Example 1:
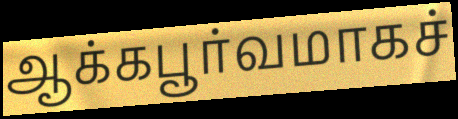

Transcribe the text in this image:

ஆக்கபூர்வமாகச்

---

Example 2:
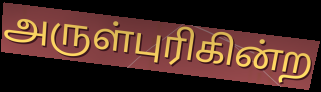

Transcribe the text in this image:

அருள்புரிகின்ற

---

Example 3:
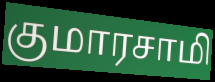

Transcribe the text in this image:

குமாரசாமி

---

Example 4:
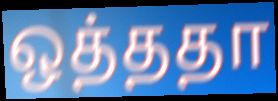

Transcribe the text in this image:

ஒத்ததா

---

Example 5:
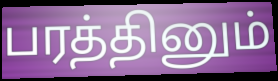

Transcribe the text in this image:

பரத்தினும்